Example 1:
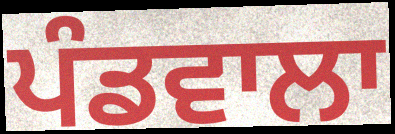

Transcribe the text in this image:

ਪੰਡਵਾਲਾ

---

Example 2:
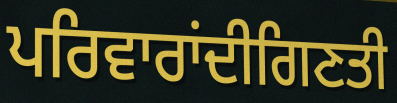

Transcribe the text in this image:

ਪਰਿਵਾਰਾਂਦੀਗਿਣਤੀ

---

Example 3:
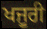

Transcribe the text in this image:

ਖਜੂਰੀ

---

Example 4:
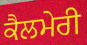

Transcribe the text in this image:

ਕੈਲਮੇਰੀ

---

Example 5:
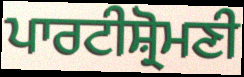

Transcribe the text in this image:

ਪਾਰਟੀਸ਼੍ਰੋਮਣੀ